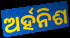
ଅର୍ହନିଶ